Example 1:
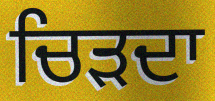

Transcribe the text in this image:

ਚਿੜਦਾ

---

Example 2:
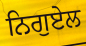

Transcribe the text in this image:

ਨਿਗੁਏਲ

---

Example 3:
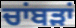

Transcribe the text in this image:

ਚਾਂਬੜਾਂ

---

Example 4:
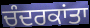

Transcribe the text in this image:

ਚੰਦਰਕਾਂਤਾ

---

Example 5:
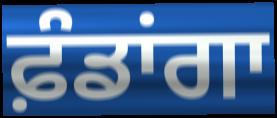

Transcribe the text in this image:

ਫ਼ੰਡਾਂਗਾ